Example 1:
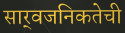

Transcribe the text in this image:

सार्वजनिकतेची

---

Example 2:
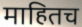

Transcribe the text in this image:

माहितच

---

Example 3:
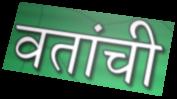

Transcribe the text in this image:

वतांची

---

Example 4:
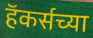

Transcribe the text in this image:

हॅकर्सच्या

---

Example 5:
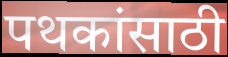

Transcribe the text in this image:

पथकांसाठी